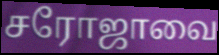
சரோஜாவை